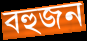
বহুজন